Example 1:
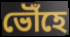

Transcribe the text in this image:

ভৌঁহে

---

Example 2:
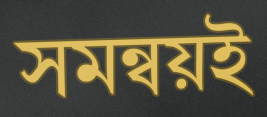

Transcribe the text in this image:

সমন্বয়ই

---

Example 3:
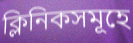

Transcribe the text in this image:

ক্লিনিকসমূহে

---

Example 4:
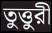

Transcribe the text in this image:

তুত্তুরী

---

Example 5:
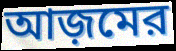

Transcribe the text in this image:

আজ়মের